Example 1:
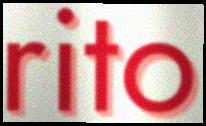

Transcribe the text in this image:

rito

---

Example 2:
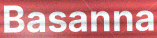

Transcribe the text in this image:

Basanna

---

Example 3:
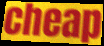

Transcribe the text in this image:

cheap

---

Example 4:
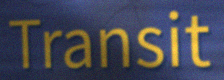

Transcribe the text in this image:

Transit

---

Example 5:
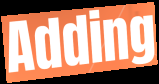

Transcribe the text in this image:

Adding